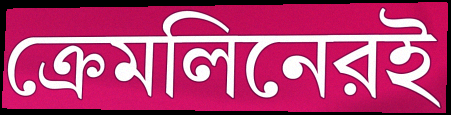
ক্রেমলিনেরই